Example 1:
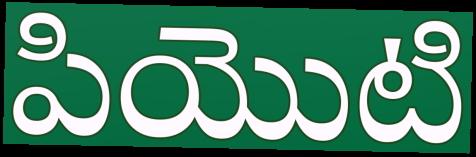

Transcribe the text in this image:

పియొటి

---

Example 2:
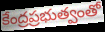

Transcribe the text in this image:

కేంద్రప్రభుత్వంతో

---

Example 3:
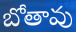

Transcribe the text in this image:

బోతావు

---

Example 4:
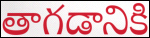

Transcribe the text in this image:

తాగడానికి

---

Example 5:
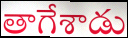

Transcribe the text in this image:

తాగేశాడు